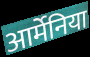
आर्मेनिया